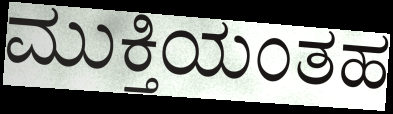
ಮುಕ್ತಿಯಂತಹ